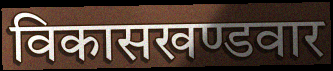
विकासखण्‍डवार